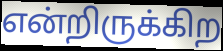
என்றிருக்கிற